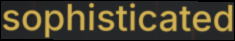
sophisticated